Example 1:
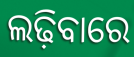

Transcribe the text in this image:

ଲଢ଼ିବାରେ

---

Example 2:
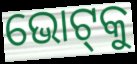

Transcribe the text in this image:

ଭୋଟ୍‍କୁ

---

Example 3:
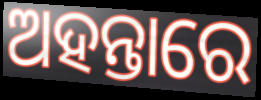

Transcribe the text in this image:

ଅହନ୍ତାରେ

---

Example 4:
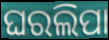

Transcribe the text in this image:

ଘରଲିପା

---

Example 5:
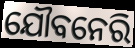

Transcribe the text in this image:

ଯୌବନେରି